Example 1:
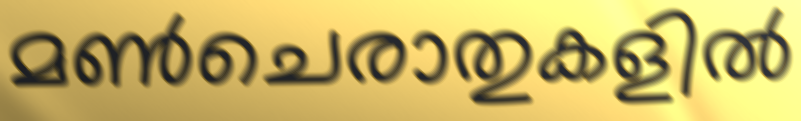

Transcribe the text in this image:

മൺചെരാതുകളിൽ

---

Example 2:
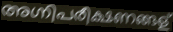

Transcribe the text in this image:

അഗ്നിപരീക്ഷണങ്ങള്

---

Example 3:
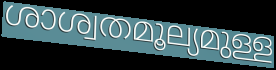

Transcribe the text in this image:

ശാശ്വതമൂല്യമുള്ള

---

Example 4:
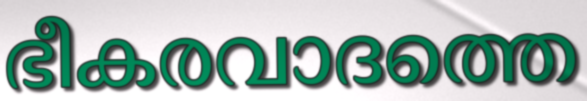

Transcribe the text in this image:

ഭീകരവാദത്തെ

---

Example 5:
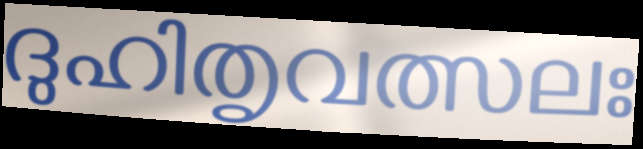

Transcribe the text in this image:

ദുഹിതൃവത്സലഃ